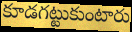
కూడగట్టుకుంటారు